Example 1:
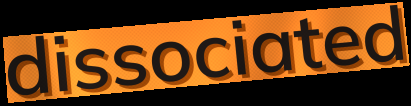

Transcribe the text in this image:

dissociated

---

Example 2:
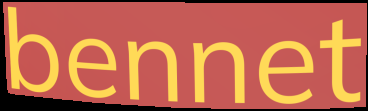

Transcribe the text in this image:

bennet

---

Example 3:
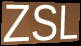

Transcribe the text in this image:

ZSL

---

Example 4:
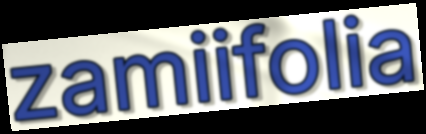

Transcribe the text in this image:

zamiifolia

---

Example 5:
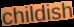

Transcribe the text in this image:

childish